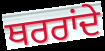
ਥਰਰਾਂਦੇ